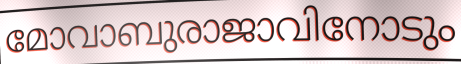
മോവാബുരാജാവിനോടും